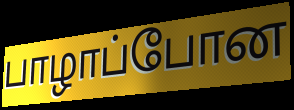
பாழாப்போன